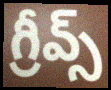
గ్రీవ్స్